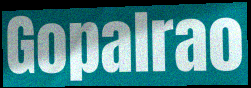
Gopalrao